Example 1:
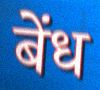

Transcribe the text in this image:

बेंध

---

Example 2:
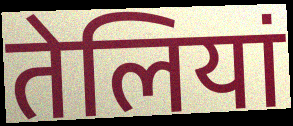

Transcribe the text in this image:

तेलियां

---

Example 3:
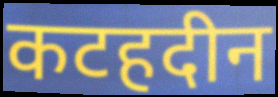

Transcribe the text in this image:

कटहदीन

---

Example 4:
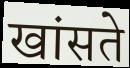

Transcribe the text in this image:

खांसते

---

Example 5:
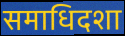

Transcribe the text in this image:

समाधिदशा